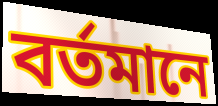
বৰ্তমানে